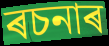
ৰচনাৰ